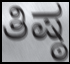
ತಿಷ್ಠ